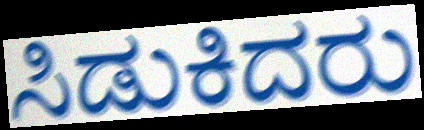
ಸಿಡುಕಿದರು